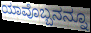
ಯಾವೊಬ್ಬನನ್ನೂ